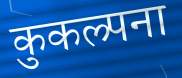
कुकल्पना